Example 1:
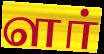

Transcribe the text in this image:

ளர்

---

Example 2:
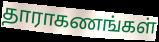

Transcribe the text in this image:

தாராகணங்கள்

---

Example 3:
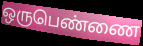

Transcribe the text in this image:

ஒருபெண்ணை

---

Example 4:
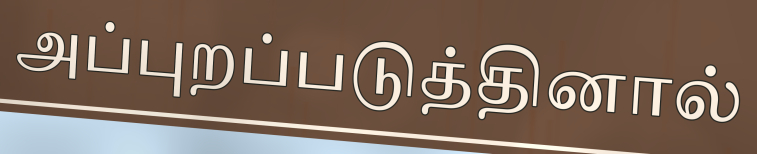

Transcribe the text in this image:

அப்புறப்படுத்தினால்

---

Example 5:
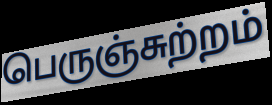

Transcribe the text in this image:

பெருஞ்சுற்றம்